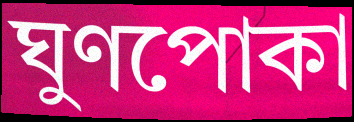
ঘুণপোকা